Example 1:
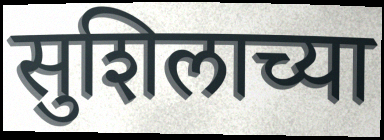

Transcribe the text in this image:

सुशिलाच्या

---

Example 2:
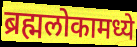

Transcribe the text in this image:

ब्रह्मलोकामध्ये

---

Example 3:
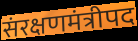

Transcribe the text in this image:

संरक्षणमंत्रीपद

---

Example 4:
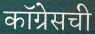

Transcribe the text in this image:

कॉग्रेसची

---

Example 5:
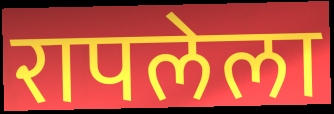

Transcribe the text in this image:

रापलेला